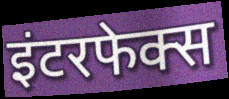
इंटरफेक्स